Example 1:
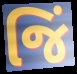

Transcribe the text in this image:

જિં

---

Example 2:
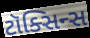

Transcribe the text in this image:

ટૉક્સિન્સ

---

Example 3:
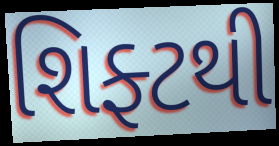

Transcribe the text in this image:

શિફ્ટથી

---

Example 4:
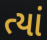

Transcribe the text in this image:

ત્યાં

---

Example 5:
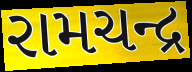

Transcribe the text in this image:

રામચન્દ્ર